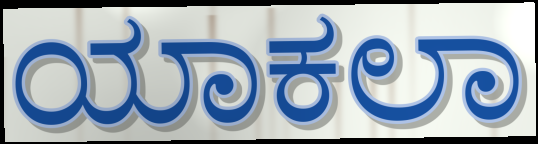
ಯಾಕಲಾ